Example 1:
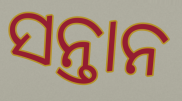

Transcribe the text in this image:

ସନ୍ତାନ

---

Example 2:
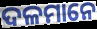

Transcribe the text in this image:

ଦଳମାନେ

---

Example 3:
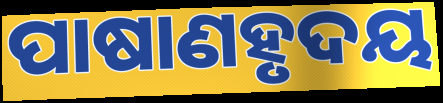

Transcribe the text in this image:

ପାଷାଣହୃଦୟ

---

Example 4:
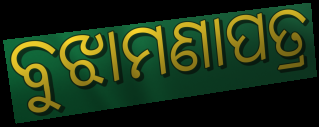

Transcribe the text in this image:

ବୁଝାମଣାପତ୍ର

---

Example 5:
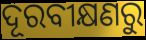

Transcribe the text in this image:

ଦୂରବୀକ୍ଷଣରୁ